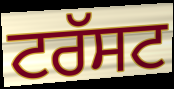
ਟਰੱਸਟ